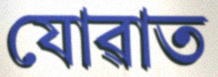
যোৱাত